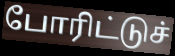
போரிட்டுச்